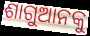
ଶାଗୁଆନକୁ